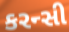
કરન્સી